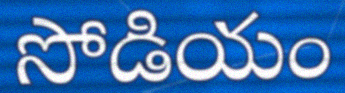
సోడియం